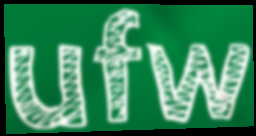
ufw